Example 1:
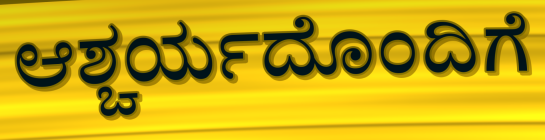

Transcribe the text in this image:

ಆಶ್ಚರ್ಯದೊಂದಿಗೆ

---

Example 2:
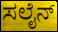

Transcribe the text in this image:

ಸಲೈನ್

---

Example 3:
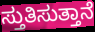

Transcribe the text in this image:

ಸ್ತುತಿಸುತ್ತಾನೆ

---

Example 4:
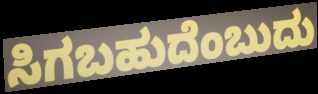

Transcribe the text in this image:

ಸಿಗಬಹುದೆಂಬುದು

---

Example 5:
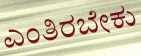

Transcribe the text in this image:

ಎಂತಿರಬೇಕು